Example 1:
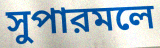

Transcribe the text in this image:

সুপারমলে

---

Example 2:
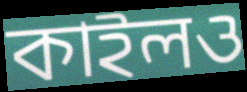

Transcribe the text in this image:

কাইলও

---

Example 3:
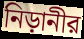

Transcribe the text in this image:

নিড়ানীর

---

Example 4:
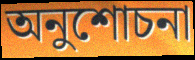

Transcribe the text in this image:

অনুশোচনা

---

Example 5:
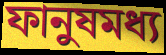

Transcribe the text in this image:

ফানুষমধ্য